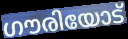
ഗൗരിയോട്